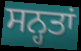
ਸਨ੍ਹਤਾਂ